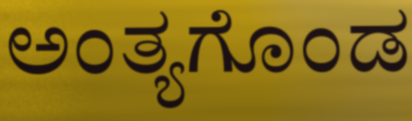
ಅಂತ್ಯಗೊಂಡ